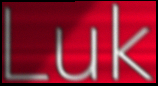
Luk